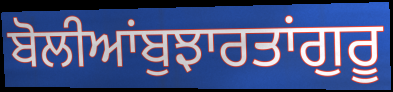
ਬੋਲੀਆਂਬੁਝਾਰਤਾਂਗੁਰੂ